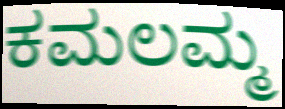
ಕಮಲಮ್ಮ